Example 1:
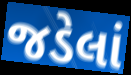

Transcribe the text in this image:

જડેલાં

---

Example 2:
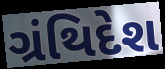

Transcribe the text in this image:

ગ્રંથિદેશ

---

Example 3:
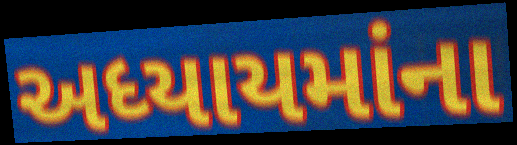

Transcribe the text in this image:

અધ્યાયમાંના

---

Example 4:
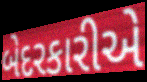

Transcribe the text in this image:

બેદરકારીએ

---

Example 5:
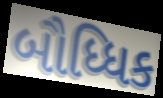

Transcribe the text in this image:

બૌધ્ધિક